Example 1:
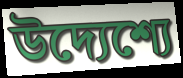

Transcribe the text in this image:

উদ্যেশ্যে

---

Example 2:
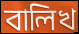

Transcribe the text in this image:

বালিখ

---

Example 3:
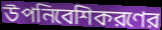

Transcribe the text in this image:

উপনিবেশিকরণের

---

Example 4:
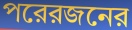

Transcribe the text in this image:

পরেরজনের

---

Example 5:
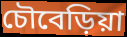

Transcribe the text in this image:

চৌবেড়িয়া